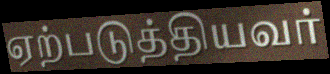
ஏற்படுத்தியவர்